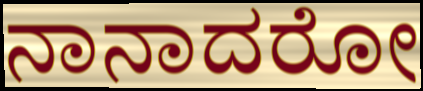
ನಾನಾದರೋ